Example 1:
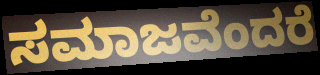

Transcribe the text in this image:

ಸಮಾಜವೆಂದರೆ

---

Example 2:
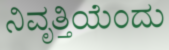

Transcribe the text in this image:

ನಿವೃತ್ತಿಯೆಂದು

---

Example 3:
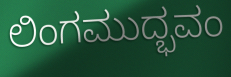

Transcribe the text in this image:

ಲಿಂಗಮುದ್ಭವಂ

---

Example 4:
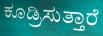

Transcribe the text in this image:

ಕೂಡ್ರಿಸುತ್ತಾರೆ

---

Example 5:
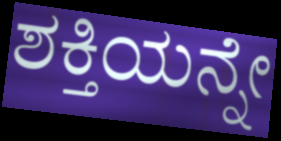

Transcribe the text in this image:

ಶಕ್ತಿಯನ್ನೇ